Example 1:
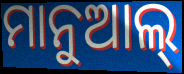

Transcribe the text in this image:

ମାନୁଆଲ୍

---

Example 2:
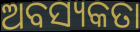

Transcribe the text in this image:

ଅବସ୍ୟକତା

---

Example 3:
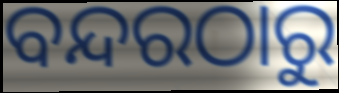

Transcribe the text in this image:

ବନ୍ଦରଠାରୁ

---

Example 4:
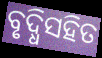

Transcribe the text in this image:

ବୃଦ୍ଧିସହିତ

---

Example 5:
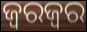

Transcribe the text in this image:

ଜ୍ୱରଜ୍ୱର